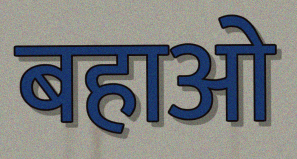
बहाओ